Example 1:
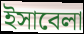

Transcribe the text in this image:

ইসাবেলা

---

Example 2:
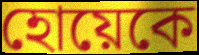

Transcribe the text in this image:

হোয়েকে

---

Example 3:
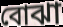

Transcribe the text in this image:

বোঝা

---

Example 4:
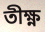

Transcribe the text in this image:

তীক্ষ্ণ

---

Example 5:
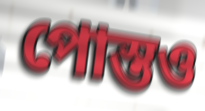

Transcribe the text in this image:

পোস্তও